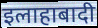
इलाहाबादी